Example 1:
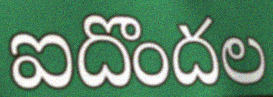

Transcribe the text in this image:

ఐదొందల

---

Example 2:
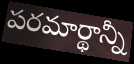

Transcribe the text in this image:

పరమార్థాన్నీ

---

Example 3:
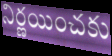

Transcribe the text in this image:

నిర్ణయించకు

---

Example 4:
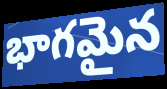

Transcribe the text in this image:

భాగమైన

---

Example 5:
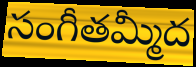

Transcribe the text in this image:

సంగీతమ్మీద